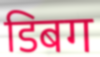
डिबग